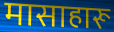
मासाहारू